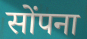
सोंपना